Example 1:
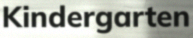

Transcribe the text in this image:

Kindergarten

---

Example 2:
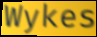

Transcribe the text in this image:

Wykes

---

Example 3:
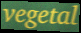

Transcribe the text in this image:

vegetal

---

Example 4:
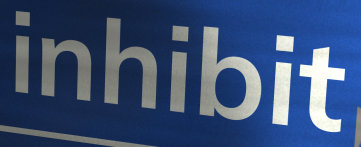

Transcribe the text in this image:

inhibit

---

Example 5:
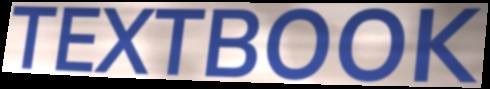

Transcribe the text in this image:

TEXTBOOK